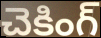
చెకింగ్